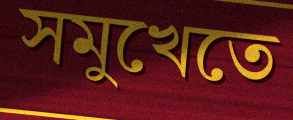
সমুখেতে